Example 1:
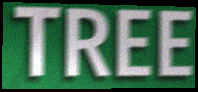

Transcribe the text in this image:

TREE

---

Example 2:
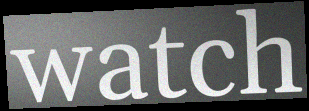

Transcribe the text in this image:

watch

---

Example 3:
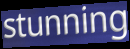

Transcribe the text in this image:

stunning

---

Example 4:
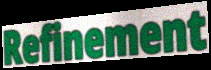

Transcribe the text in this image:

Refinement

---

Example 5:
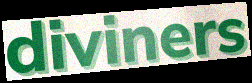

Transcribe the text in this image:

diviners